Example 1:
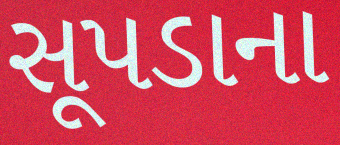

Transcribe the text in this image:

સૂપડાના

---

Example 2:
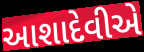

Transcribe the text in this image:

આશાદેવીએ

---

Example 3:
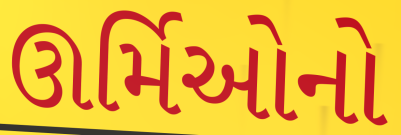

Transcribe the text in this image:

ઊર્મિઓનો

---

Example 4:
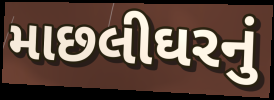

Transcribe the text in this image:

માછલીઘરનું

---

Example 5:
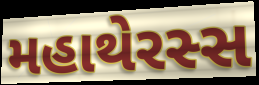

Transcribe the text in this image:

મહાથેરસ્સ